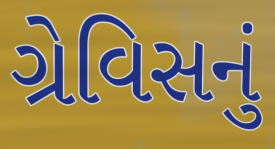
ગ્રેવિસનું